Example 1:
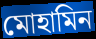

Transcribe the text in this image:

মোহামিন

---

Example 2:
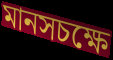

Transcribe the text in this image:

মানসচক্ষে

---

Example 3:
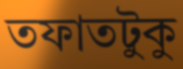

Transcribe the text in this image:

তফাতটুকু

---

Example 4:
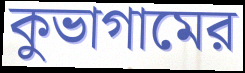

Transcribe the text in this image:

কুভাগামের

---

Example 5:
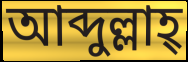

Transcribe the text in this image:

আব্দুল্লাহ্